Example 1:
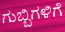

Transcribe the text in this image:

ಗುಬ್ಬಿಗಳಿಗೆ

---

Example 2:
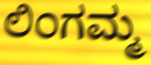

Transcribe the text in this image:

ಲಿಂಗಮ್ಮ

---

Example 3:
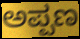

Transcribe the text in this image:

ಅಪ್ಪಣ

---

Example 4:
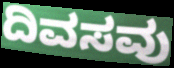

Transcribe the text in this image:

ದಿವಸವು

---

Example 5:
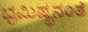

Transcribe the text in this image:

ಭ್ರಮಿಷ್ಟನಂತೆ